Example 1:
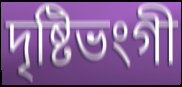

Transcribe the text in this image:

দৃষ্টিভংগী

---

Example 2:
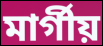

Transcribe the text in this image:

মার্গীয়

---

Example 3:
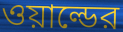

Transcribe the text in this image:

ওয়াল্ডের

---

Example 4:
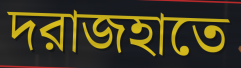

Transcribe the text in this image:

দরাজহাতে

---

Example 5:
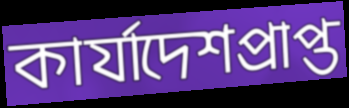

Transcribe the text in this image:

কার্যাদেশপ্রাপ্ত